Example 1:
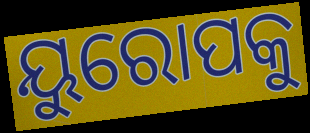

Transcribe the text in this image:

ୟୁରୋପକୁ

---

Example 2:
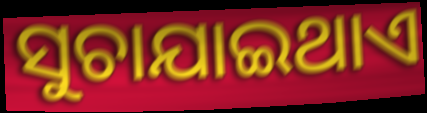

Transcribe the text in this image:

ସୁଚାଯାଇଥାଏ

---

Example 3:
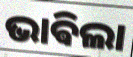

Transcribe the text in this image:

ଭାଵିଲା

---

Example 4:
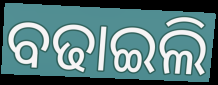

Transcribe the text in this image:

ବଢାଇଲି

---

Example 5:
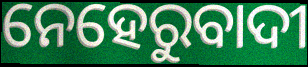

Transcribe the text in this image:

ନେହେରୁବାଦୀ